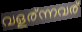
വളര്ന്നവര്